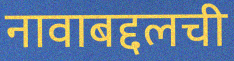
नावाबद्दलची